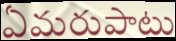
ఏమరుపాటు